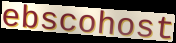
ebscohost